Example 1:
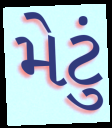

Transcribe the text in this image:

મેટું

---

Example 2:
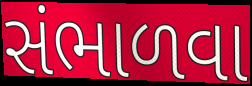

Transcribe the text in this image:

સંભાળવા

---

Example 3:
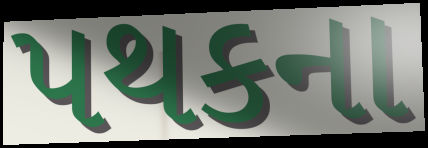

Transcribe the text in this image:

પથકના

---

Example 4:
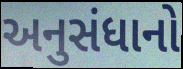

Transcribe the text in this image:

અનુસંધાનો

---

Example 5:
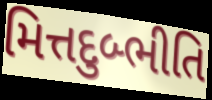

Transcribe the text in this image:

મિત્તદુબ્ભીતિ